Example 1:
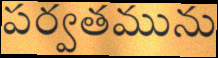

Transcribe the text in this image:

పర్వతమును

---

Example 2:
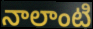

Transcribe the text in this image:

నాలాంటి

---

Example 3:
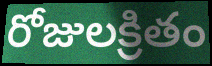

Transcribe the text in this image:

రోజులక్రితం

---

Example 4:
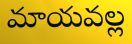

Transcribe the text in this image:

మాయవల్ల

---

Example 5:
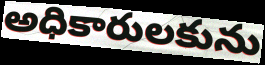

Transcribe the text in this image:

అధికారులకును